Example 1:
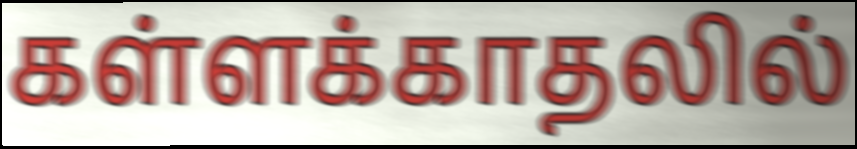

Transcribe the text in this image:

கள்ளக்காதலில்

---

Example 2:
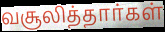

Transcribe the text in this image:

வசூலித்தார்கள்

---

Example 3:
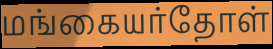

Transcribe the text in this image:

மங்கையர்தோள்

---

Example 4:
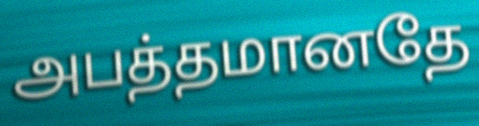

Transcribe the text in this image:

அபத்தமானதே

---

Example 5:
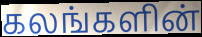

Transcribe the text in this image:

கலங்களின்